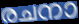
രചനാ